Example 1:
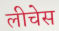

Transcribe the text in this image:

लीचेस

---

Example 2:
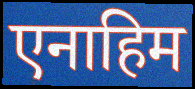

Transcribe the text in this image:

एनाहिम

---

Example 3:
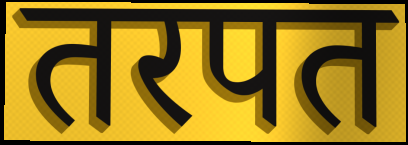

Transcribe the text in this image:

तरपत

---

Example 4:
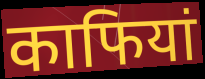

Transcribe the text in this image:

काफियां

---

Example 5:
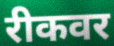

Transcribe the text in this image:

रीकवर